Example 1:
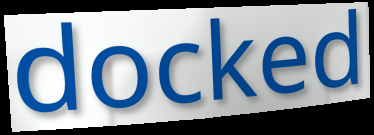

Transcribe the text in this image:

docked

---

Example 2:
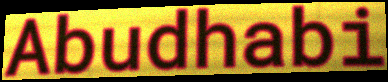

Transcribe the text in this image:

Abudhabi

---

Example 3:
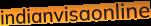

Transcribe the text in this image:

indianvisaonline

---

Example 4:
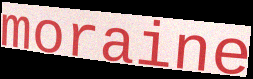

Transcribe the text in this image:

moraine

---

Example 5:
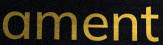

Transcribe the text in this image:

ament